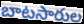
బాటసారుల